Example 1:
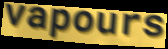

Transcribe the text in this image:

vapours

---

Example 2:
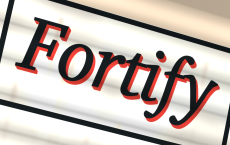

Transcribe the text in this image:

Fortify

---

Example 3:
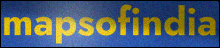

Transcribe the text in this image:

mapsofindia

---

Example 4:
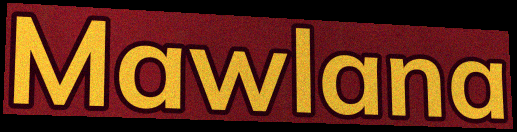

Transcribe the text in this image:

Mawlana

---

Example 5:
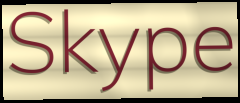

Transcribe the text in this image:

Skype